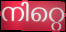
നിറ്റെ